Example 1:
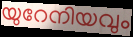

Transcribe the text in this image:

യുറേനിയവും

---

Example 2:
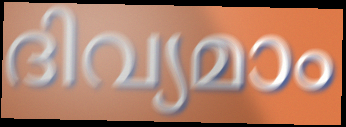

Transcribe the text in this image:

ദിവ്യമാം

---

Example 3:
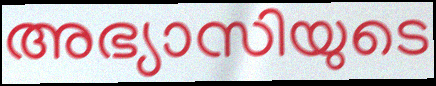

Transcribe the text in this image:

അഭ്യാസിയുടെ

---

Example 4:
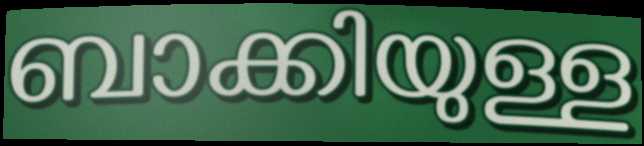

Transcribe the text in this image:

ബാക്കിയുള്ള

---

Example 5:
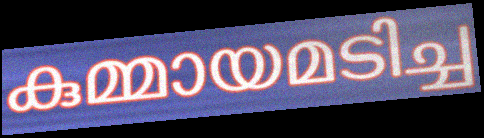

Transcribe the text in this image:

കുമ്മായമടിച്ച